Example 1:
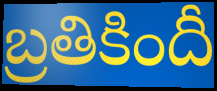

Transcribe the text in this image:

బ్రతికిందీ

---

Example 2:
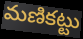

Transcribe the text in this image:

మణికట్టు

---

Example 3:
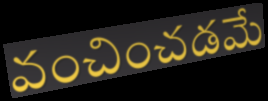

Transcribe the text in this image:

వంచించడమే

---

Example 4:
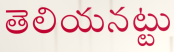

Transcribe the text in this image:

తెలియనట్టు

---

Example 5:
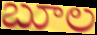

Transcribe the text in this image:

బూల